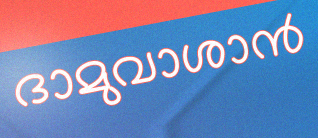
ദാമുവാശാൻ